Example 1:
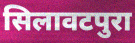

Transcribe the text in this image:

सिलावटपुरा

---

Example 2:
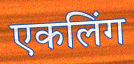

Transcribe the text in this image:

एकलिंग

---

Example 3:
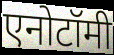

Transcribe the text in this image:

एनोटॉमी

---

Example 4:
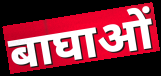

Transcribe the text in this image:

बाघाओं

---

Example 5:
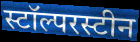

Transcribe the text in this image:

स्टॉल्परस्टीन